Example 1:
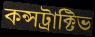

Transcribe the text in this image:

কন্সট্রাক্টিভ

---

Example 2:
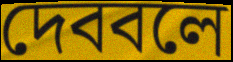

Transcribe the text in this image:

দেববলে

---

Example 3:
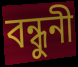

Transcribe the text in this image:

বন্ধুনী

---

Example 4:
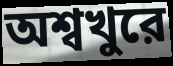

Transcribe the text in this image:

অশ্বখুরে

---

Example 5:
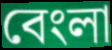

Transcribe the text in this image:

বেংলা